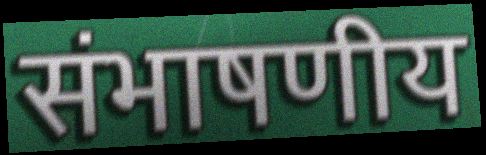
संभाषणीय